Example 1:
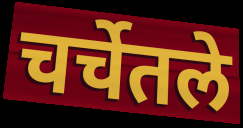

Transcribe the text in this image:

चर्चेतले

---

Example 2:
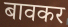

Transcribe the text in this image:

बावकर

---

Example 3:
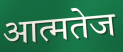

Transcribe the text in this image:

आत्मतेज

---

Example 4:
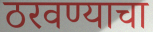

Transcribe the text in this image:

ठरवण्याचा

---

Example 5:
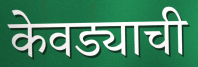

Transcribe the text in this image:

केवड्याची